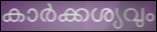
കാർക്കശ്യവും